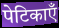
पेटिकाएँ